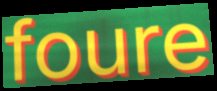
foure